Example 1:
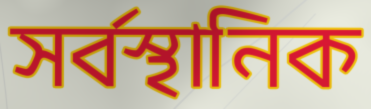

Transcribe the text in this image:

সর্বস্থানিক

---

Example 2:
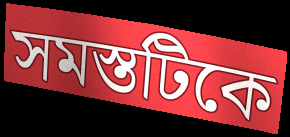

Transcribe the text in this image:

সমস্তটিকে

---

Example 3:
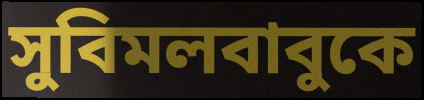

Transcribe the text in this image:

সুবিমলবাবুকে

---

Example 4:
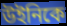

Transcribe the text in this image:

উইনিকে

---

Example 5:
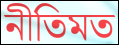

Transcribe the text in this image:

নীতিমত